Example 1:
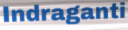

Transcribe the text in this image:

Indraganti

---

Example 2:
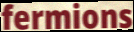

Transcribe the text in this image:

fermions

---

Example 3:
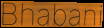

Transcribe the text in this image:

Bhabani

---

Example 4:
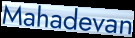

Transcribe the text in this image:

Mahadevan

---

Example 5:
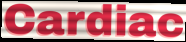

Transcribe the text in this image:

Cardiac